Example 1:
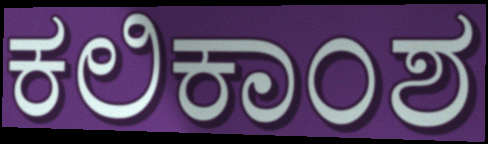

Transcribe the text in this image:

ಕಲಿಕಾಂಶ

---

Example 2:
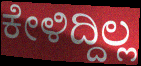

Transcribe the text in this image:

ಕೇಳಿದ್ದಿಲ್ಲ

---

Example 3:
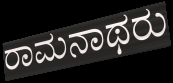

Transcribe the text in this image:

ರಾಮನಾಥರು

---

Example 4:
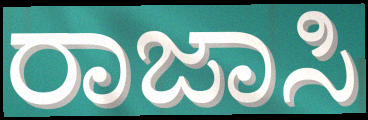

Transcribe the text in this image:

ರಾಜಾಸಿ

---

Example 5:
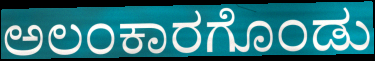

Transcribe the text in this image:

ಅಲಂಕಾರಗೊಂಡು